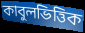
কাবুলভিত্তিক